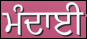
ਮੰਦਾਈ